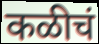
कळीचं